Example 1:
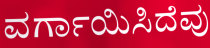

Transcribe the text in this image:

ವರ್ಗಾಯಿಸಿದೆವು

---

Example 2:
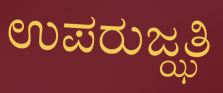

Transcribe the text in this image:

ಉಪರುಜ್ಝತಿ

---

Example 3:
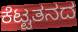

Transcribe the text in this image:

ಕೆಟ್ಟತನದ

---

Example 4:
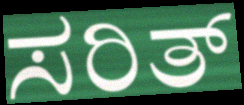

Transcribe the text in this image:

ಸರಿತ್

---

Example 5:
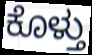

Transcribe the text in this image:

ಕೊಳ್ತು